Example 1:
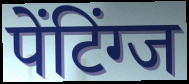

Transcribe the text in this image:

पेंटिंग्ज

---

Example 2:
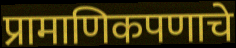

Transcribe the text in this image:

प्रामाणिकपणाचे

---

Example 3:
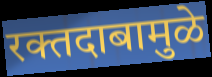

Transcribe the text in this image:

रक्तदाबामुळे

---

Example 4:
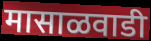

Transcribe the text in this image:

मासाळवाडी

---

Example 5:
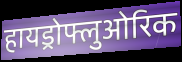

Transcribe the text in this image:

हायड्रोफ्लुओरिक